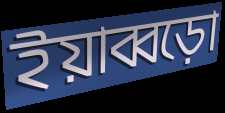
ইয়াব্বড়ো